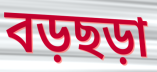
বড়ছড়া